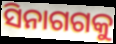
ସିନାଗଗକୁ